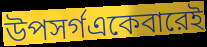
উপসর্গএকেবারেই